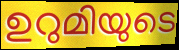
ഉറുമിയുടെ